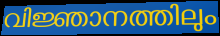
വിജ്ഞാനത്തിലും